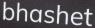
bhashet